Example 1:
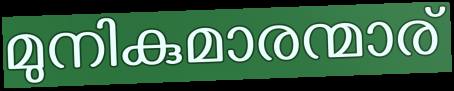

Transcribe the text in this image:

മുനികുമാരന്മാര്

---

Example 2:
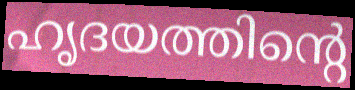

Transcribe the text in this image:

ഹൃദയത്തിന്റെ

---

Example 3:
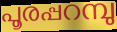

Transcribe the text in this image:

പൂരപ്പറമ്പു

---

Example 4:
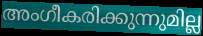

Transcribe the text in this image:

അംഗീകരിക്കുന്നുമില്ല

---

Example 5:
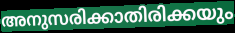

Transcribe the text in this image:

അനുസരിക്കാതിരിക്കയും